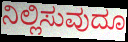
ನಿಲ್ಲಿಸುವುದೂ